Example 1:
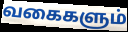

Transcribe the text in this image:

வகைகளும்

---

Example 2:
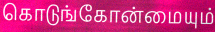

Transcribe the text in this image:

கொடுங்கோன்மையும்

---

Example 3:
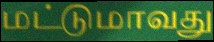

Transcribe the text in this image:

மட்டுமாவது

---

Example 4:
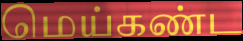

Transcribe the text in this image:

மெய்கண்ட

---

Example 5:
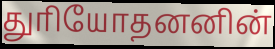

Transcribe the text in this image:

துரியோதனனின்